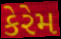
કેરેમ